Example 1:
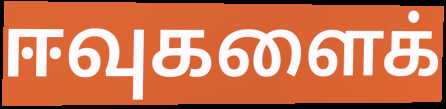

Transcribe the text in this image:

ஈவுகளைக்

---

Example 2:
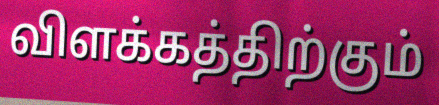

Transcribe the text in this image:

விளக்கத்திற்கும்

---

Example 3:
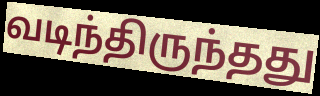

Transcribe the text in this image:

வடிந்திருந்தது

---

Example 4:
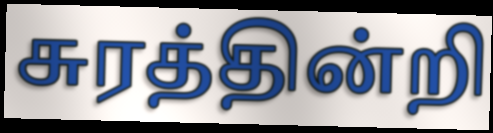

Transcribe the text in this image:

சுரத்தின்றி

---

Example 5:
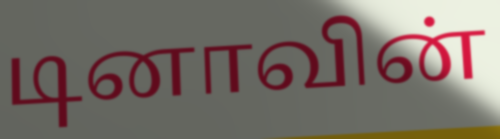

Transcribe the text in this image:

டினாவின்